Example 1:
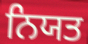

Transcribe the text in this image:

ਨਿਯਤ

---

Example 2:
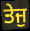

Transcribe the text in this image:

ਤੇਜੁ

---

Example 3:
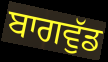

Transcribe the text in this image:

ਬਾਗਵੁੱਡ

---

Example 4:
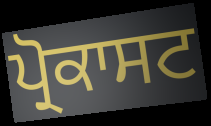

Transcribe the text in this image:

ਪ੍ਰੋਕਾਸਟ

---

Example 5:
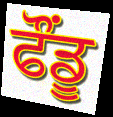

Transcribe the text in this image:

ਫੌਂਡੂ